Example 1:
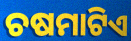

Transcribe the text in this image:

ଚଷମାଟିଏ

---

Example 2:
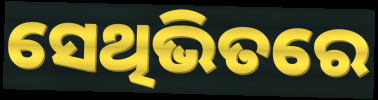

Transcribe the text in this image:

ସେଥିଭିତରେ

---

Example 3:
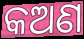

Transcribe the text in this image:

କଅଣ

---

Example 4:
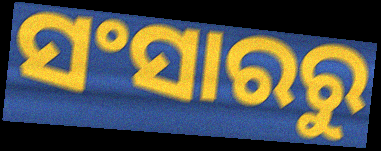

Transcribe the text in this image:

ସଂସାରରୁ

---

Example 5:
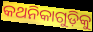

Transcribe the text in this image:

କଥନିକାଗୁଡ଼ିକୁ